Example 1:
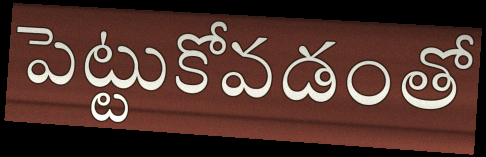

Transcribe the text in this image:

పెట్టుకోవడంతో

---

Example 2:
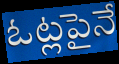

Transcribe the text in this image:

ఓట్లపైనే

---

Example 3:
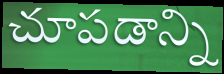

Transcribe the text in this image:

చూపడాన్ని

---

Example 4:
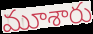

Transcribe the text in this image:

మూశారు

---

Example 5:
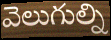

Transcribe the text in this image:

వెలుగుల్ని